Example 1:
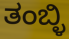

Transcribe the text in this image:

ತಂಬ್ಳಿ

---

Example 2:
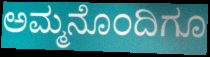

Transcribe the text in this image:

ಅಮ್ಮನೊಂದಿಗೂ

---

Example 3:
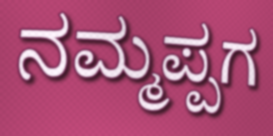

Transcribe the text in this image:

ನಮ್ಮಪ್ಪಗ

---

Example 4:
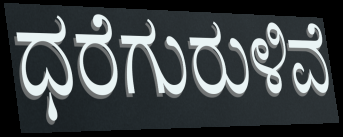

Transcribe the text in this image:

ಧರೆಗುರುಳಿವೆ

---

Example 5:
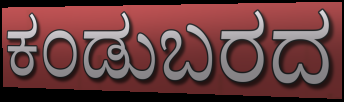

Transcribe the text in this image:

ಕಂಡುಬರದ